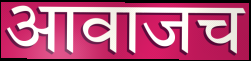
आवाजच